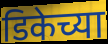
डिकेच्या